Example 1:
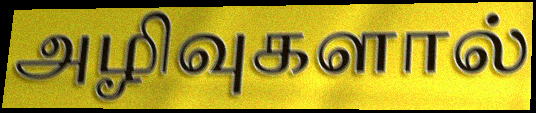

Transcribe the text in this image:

அழிவுகளால்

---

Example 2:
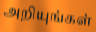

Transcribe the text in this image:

அறியுங்கள்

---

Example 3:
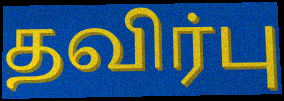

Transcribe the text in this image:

தவிர்பு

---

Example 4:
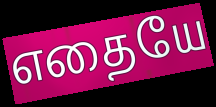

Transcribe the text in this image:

எதையே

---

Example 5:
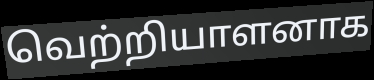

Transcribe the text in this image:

வெற்றியாளனாக